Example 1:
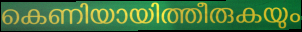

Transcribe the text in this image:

കെണിയായിത്തീരുകയും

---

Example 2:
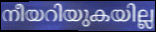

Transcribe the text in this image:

നീയറിയുകയില്ല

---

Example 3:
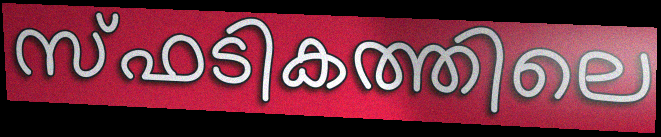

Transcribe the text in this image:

സ്ഫടികത്തിലെ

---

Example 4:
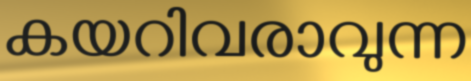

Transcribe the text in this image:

കയറിവരാവുന്ന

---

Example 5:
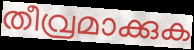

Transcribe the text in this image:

തീവ്രമാക്കുക